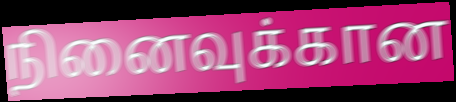
நினைவுக்கான